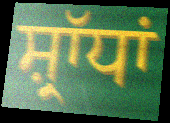
ਸ਼੍ਰਾੱਧਾਂ